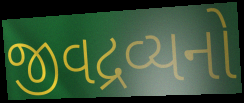
જીવદ્રવ્યનો